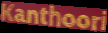
Kanthoori